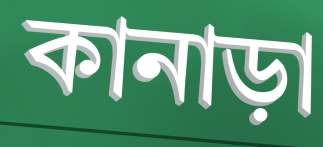
কানাড়া